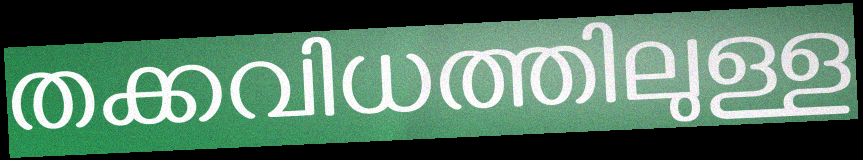
തക്കവിധത്തിലുള്ള